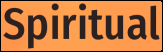
Spiritual